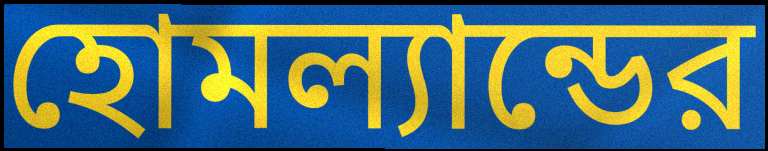
হোমল্যান্ডের